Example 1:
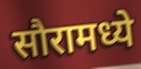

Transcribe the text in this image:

सौरामध्ये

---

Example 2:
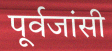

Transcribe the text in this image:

पूर्वजांसी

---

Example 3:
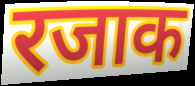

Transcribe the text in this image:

रजाक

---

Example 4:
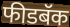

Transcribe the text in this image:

फीडबॅक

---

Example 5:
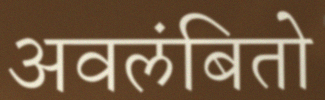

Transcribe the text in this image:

अवलंबितो